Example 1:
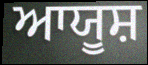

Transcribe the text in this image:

ਆਯੂਸ਼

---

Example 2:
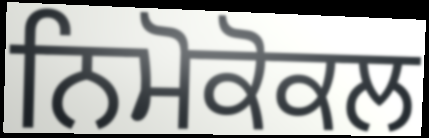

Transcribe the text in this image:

ਨਿਮੋਕੋਕਲ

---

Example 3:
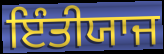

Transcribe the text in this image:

ਇੰਤੀਯਾਜ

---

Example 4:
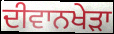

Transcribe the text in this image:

ਦੀਵਾਨਖੇੜਾ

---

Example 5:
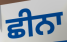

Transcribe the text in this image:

ਛੀਨਾ